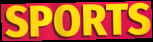
SPORTS